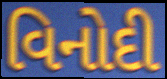
વિનોદી